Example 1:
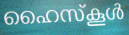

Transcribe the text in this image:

ഹൈസ്‌കൂൾ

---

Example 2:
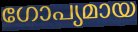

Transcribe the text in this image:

ഗോപ്യമായ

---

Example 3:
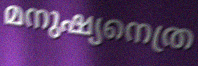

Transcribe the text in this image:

മനുഷ്യനെത്ര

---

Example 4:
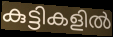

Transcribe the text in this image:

കുട്ടികളിൽ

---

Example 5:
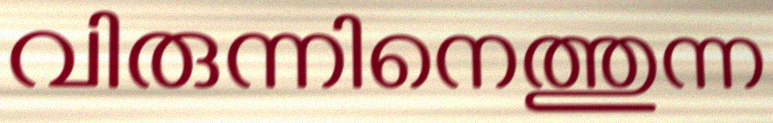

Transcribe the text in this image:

വിരുന്നിനെത്തുന്ന